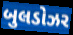
બુલડોઝર